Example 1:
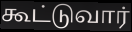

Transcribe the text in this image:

கூட்டுவார்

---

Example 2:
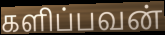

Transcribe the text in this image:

களிப்பவன்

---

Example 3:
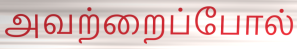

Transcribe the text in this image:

அவற்றைப்போல்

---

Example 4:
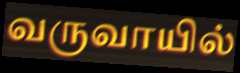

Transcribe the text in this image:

வருவாயில்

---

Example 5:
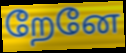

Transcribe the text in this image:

றேனே